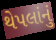
થેપલાંનું